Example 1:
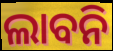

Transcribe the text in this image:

ଲାବନି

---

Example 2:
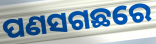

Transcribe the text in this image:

ପଣସଗଛରେ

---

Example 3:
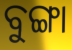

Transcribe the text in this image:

ବୁଙ୍ଗା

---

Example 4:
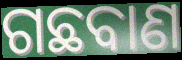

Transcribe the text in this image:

ଗଛବାଣ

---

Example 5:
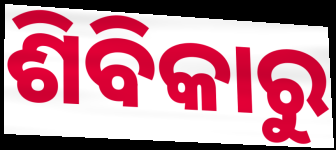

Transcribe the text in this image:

ଶିବିକାରୁ